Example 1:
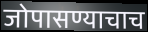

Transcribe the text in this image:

जोपासण्याचाच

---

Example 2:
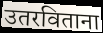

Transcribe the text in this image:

उतरविताना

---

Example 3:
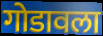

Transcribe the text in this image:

गोडावला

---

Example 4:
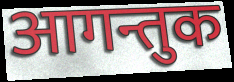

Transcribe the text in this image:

आगन्तुक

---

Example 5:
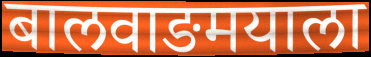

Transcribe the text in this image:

बालवाङमयाला